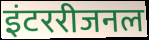
इंटररीजनल